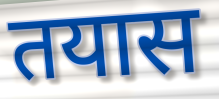
तयास